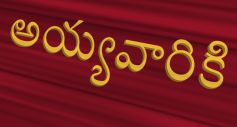
అయ్యవారికి